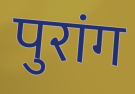
पुरांग